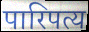
पारिपत्य